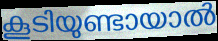
കൂടിയുണ്ടായാൽ